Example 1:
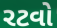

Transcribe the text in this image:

રટવો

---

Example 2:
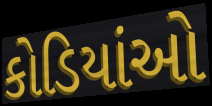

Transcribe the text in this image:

કોડિયાંઓ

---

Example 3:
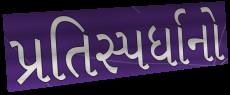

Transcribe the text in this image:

પ્રતિસ્પર્ધાનો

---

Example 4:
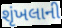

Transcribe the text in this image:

શૃંખલાની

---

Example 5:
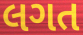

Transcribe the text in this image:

લગત